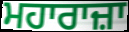
ਮਹਾਰਾਜ਼ਾ